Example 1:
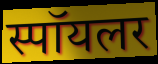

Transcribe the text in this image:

स्पॉयलर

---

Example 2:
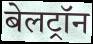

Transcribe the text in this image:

बेलट्रॉन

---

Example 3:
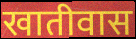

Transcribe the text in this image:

खातीवास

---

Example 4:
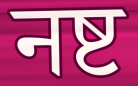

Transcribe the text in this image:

नष्ट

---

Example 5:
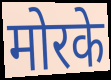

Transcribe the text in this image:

मोरके